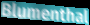
Blumenthal